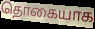
தொகையாக